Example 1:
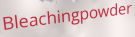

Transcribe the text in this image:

Bleachingpowder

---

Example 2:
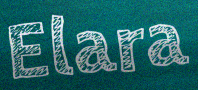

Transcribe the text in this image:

Elara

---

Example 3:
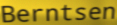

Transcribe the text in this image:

Berntsen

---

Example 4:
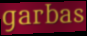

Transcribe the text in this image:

garbas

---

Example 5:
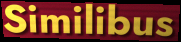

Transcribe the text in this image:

Similibus